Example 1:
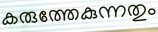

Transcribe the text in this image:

കരുത്തേകുന്നതും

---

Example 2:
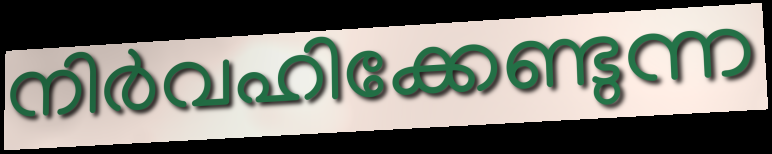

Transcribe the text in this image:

നിർവഹിക്കേണ്ടുന്ന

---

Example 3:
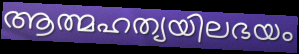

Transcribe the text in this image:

ആത്മഹത്യയിലഭയം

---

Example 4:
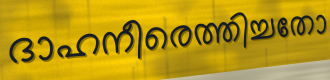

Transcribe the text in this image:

ദാഹനീരെത്തിച്ചതോ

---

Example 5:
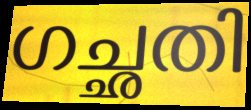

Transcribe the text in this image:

ഗച്ഛതി